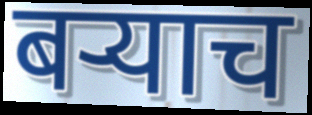
बऱ्याच